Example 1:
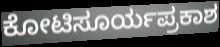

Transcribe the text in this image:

ಕೋಟಿಸೂರ್ಯಪ್ರಕಾಶ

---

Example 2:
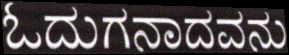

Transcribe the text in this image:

ಓದುಗನಾದವನು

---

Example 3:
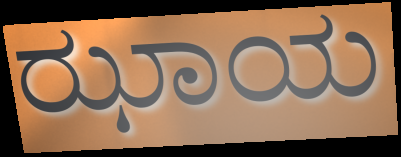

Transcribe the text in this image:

ಝಾಯ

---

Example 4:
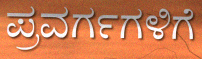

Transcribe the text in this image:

ಪ್ರವರ್ಗಗಳಿಗೆ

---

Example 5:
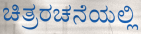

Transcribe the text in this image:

ಚಿತ್ರರಚನೆಯಲ್ಲಿ